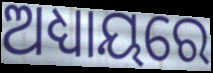
ଅଧ୍ୟାୟରେ